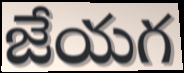
జేయగ